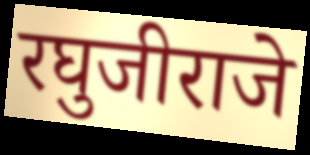
रघुजीराजे